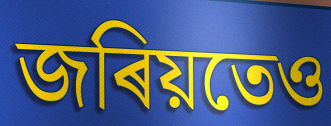
জৰিয়তেও